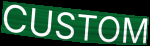
CUSTOM